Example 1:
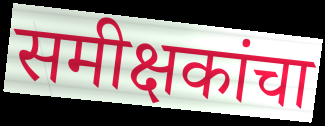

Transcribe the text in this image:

समीक्षकांचा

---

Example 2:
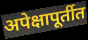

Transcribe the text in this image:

अपेक्षापूर्तीत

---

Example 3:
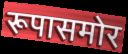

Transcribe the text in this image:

रूपासमोर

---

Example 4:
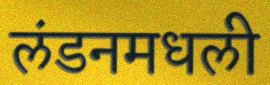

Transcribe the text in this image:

लंडनमधली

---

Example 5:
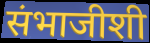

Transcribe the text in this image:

संभाजीशी